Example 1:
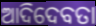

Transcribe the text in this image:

ଆଦିଦେବତା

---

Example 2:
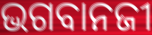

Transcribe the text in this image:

ଭଗବାନଜୀ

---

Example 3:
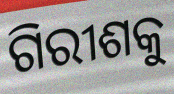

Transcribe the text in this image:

ଗିରୀଶକୁ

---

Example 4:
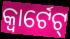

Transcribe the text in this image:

କ୍ୱାର୍ଟେଟ୍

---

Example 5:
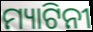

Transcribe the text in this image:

ମ୍ୟାଟିନୀ